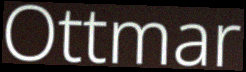
Ottmar